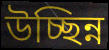
উচ্ছিন্ন